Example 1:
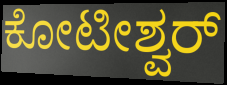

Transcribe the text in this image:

ಕೋಟೀಶ್ವರ್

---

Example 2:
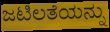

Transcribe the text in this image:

ಜಟಿಲತೆಯನ್ನು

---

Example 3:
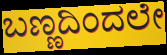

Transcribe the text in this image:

ಬಣ್ಣದಿಂದಲೇ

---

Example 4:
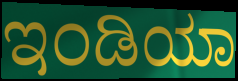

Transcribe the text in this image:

ಇಂಡಿಯಾ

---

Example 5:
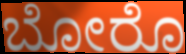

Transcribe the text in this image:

ಬೋರೊ